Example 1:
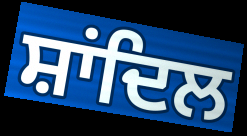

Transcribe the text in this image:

ਸ਼ਾਂਦਿਲ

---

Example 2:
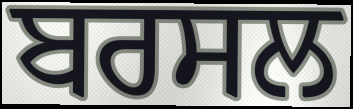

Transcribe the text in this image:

ਬਰਸਲ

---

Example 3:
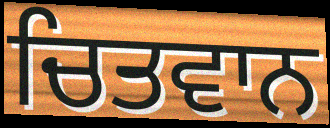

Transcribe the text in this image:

ਚਿਤਵਾਨ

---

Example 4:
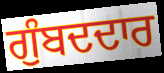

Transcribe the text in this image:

ਗੁੰਬਦਦਾਰ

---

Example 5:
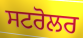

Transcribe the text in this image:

ਸਟਰੋਲਰ